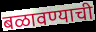
बळावण्याची